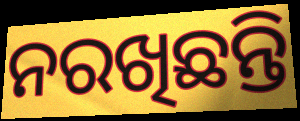
ନରଖିଛନ୍ତି